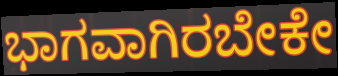
ಭಾಗವಾಗಿರಬೇಕೇ